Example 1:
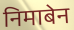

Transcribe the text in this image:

निमाबेन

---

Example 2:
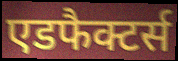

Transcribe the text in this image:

एडफैक्टर्स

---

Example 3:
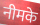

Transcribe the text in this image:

नीमके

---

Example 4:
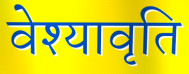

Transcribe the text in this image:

वेश्यावृति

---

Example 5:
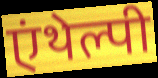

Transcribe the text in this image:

एंथेल्पी